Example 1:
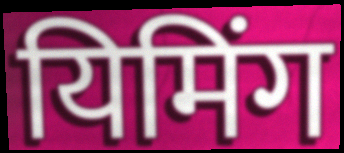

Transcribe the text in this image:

यिमिंग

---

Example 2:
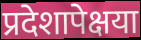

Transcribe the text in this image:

प्रदेशापेक्षया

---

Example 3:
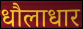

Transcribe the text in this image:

धौलाधार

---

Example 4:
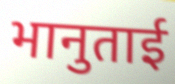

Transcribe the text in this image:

भानुताई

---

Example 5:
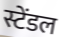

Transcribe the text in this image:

स्टेंडल